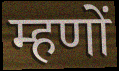
म्हणों